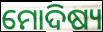
ମୋଦିଷ୍ୟ